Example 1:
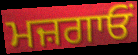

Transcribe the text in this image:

ਮਜ਼ਗਾਓਂ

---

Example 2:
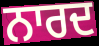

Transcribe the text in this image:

ਨਾਰਦ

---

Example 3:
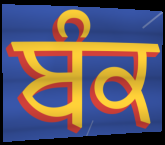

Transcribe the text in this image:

ਬੰਕ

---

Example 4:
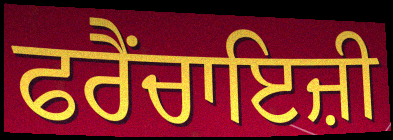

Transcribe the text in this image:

ਫਰੈਂਚਾਇਜ਼ੀ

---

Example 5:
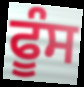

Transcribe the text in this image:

ਫੂੰਸ